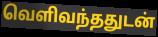
வெளிவந்ததுடன்